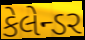
કેલેન્ડર